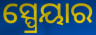
ସ୍ପ୍ରେୟାର